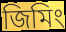
জিমিং